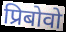
प्रिबोवो